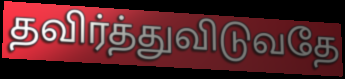
தவிர்த்துவிடுவதே